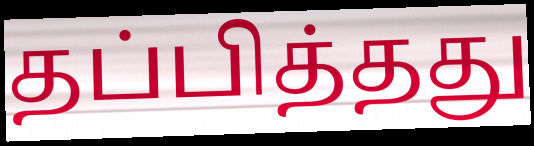
தப்பித்தது